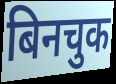
बिनचुक